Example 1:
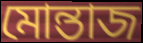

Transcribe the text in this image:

মোন্তাজ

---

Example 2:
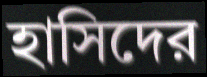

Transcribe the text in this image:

হাসিদের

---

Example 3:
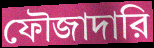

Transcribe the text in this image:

ফৌজাদারি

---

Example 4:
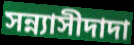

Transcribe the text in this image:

সন্ন্যাসীদাদা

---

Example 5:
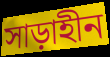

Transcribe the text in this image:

সাড়াহীন